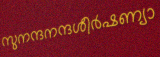
സുനന്ദനന്ദശീർഷണ്യാ